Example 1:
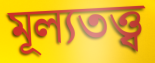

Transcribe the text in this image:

মূল্যতত্ত্ব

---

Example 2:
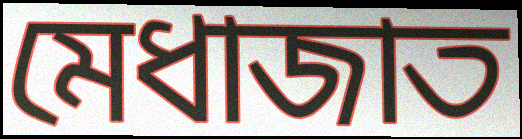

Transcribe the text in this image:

মেধাজাত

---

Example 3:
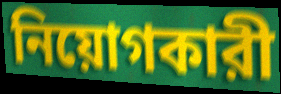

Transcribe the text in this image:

নিয়োগকারী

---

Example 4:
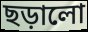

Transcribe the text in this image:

ছড়ালো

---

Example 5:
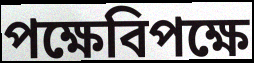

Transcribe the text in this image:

পক্ষেবিপক্ষে